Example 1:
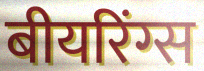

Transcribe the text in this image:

बीयरिंग्स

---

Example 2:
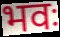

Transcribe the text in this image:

भवः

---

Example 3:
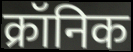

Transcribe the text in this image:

क्रॉनिक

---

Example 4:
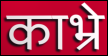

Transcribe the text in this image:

काभ्रे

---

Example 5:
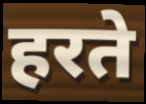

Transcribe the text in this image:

हरते